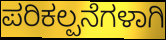
ಪರಿಕಲ್ಪನೆಗಳಾಗಿ